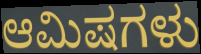
ಆಮಿಷಗಳು